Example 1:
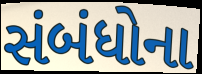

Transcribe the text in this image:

સંબંધોના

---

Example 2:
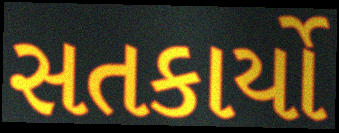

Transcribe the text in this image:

સતકાર્યો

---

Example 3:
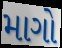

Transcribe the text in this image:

માગો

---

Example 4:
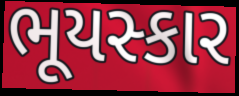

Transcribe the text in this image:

ભૂયસ્કાર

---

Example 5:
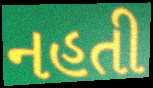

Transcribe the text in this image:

નહતી